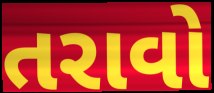
તરાવો